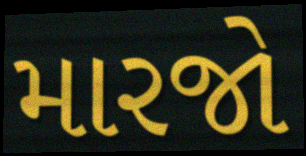
મારજો